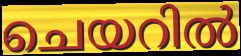
ചെയറിൽ